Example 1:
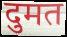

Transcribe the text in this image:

दुमत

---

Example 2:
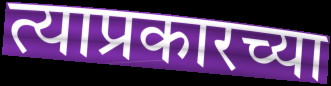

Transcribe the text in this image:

त्याप्रकारच्या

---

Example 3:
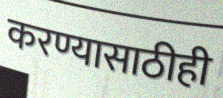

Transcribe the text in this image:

करण्यासाठीही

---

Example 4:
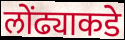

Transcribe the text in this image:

लोंढ्याकडे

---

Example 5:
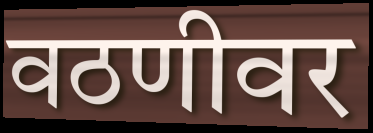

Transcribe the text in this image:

वठणीवर